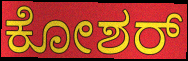
ಕೋಶರ್